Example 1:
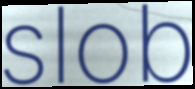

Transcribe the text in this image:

slob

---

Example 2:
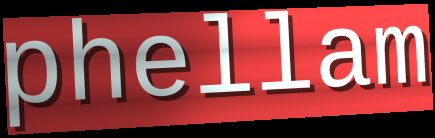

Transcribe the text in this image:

phellam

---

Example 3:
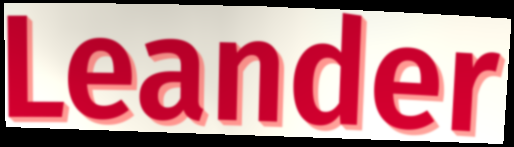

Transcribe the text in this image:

Leander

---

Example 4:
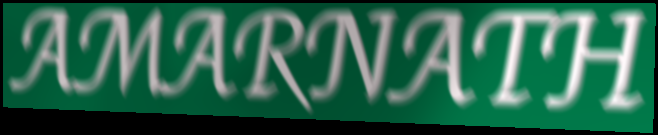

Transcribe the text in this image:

AMARNATH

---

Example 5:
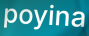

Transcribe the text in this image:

poyina